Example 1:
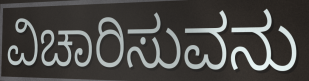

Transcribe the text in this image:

ವಿಚಾರಿಸುವನು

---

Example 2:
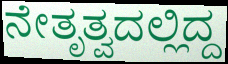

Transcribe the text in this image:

ನೇತೃತ್ವದಲ್ಲಿದ್ದ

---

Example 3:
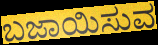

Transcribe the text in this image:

ಬಜಾಯಿಸುವ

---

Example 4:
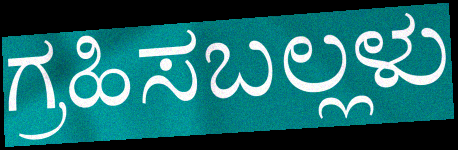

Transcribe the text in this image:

ಗ್ರಹಿಸಬಲ್ಲಳು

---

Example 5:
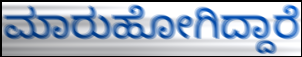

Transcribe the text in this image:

ಮಾರುಹೋಗಿದ್ದಾರೆ